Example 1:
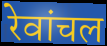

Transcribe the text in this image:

रेवांचल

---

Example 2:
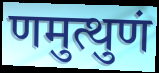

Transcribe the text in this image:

णमुत्थुणं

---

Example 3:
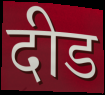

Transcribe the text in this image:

दीड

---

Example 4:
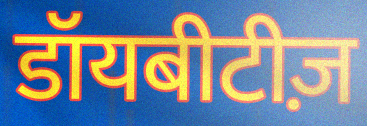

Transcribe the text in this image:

डॉयबीटीज़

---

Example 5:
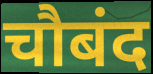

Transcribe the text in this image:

चौबंद